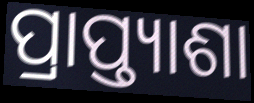
ପ୍ରାପ୍ତ୍ୟାଶା